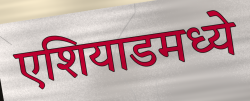
एशियाडमध्ये